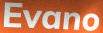
Evano